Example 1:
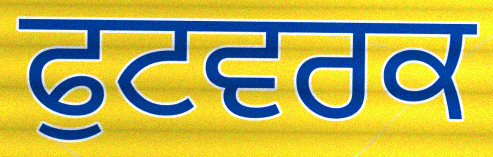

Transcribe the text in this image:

ਫੁਟਵਰਕ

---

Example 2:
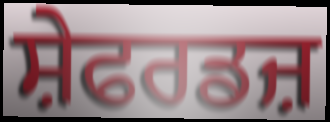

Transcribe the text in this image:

ਸ਼ੇਫਰਡਜ਼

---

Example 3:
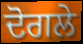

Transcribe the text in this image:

ਦੋਗਲੇ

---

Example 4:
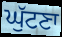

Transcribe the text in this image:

ਘੁੱਟਣਾ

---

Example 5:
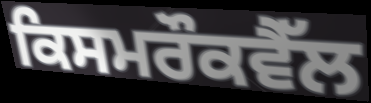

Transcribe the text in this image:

ਕਿਸਮਰੌਕਵੈੱਲ